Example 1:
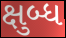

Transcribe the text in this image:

ક્ષુબ્ધ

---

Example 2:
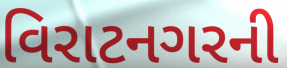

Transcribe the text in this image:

વિરાટનગરની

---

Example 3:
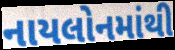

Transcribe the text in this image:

નાયલોનમાંથી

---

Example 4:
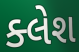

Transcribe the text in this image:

ક્લેશ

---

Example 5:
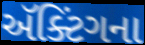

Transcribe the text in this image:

ઍક્ટિંગના